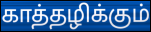
காத்தழிக்கும்